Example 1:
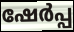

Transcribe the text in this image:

ഷേർപ്പ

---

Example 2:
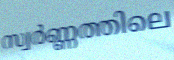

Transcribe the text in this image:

സ്വർണ്ണത്തിലെ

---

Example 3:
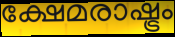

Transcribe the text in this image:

ക്ഷേമരാഷ്ട്രം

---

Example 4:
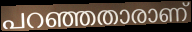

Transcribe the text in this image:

പറഞ്ഞതാരാണ്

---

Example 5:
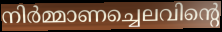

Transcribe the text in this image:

നിർമ്മാണച്ചെലവിന്റെ